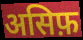
असिफ़